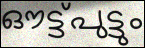
ഔട്ട്പുട്ടും